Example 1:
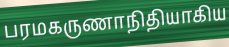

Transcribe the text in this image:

பரமகருணாநிதியாகிய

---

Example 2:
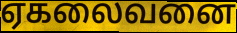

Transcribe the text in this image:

ஏகலைவனை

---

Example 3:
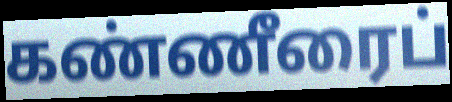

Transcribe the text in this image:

கண்ணீரைப்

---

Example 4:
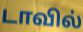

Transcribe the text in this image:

டாவில்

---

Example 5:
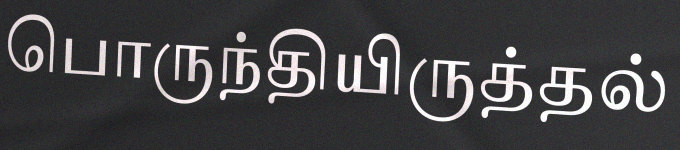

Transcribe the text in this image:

பொருந்தியிருத்தல்